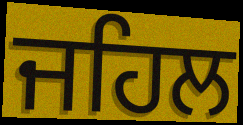
ਜਹਿਲ